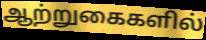
ஆற்றுகைகளில்